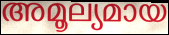
അമൂല്യമായ